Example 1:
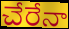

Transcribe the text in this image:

చేరేనా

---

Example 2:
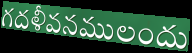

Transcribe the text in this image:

గదళీవనములందు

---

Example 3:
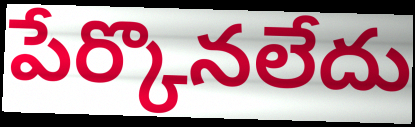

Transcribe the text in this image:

పేర్కొనలేదు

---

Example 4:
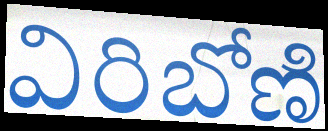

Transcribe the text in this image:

విరిబోణి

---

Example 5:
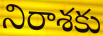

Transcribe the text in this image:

నిరాశకు